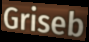
Griseb